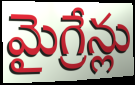
మైగ్రేన్లు